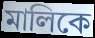
মালিকে